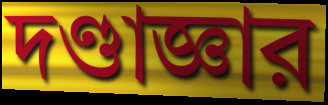
দণ্ডাজ্ঞার